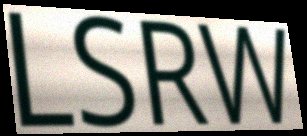
LSRW